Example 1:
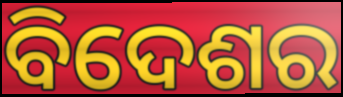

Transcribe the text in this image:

ବିଦେଶର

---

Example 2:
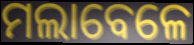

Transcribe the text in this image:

ମଲାବେଳେ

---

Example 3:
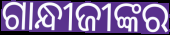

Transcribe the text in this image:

ଗାନ୍ଧୀଜୀଙ୍କର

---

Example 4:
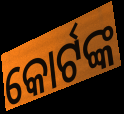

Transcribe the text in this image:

କୋର୍ଟଙ୍କ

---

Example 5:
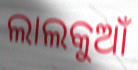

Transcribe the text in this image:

ଲାଲକୁଆଁ